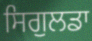
ਸਿਗੁਲਡਾ